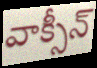
వాక్సీన్